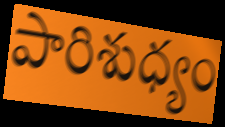
పారిశుధ్యం